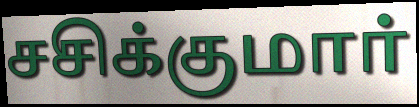
சசிக்குமார்